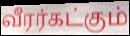
வீரர்கட்கும்